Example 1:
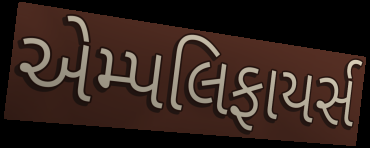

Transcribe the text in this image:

એમ્પલિફાયર્સ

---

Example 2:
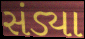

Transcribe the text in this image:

સંડ્યા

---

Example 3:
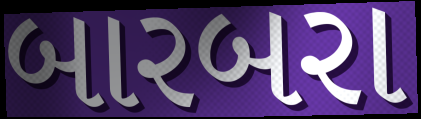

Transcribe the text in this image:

બારબરા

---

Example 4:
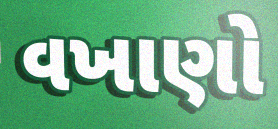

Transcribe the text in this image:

વખાણો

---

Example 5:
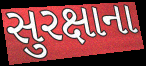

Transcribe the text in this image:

સુરક્ષાના